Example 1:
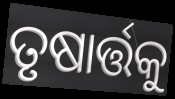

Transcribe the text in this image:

ତୃଷାର୍ତ୍ତକୁ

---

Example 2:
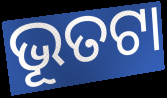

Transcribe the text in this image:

ଭୂତଟା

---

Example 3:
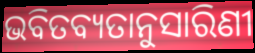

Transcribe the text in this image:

ଭବିତବ୍ୟତାନୁସାରିଣୀ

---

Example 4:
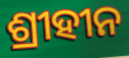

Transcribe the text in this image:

ଶ୍ରୀହୀନ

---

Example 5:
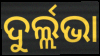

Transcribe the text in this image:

ଦୁର୍ଲ୍ଲଭା